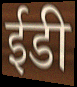
ईडी